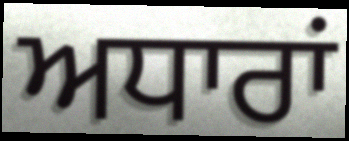
ਅਧਾਰਾਂ